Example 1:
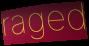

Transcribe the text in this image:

raged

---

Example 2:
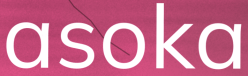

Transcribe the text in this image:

asoka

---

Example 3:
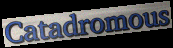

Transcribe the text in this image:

Catadromous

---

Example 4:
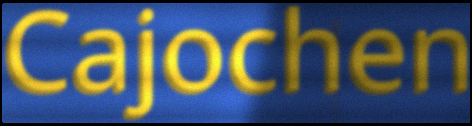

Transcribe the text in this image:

Cajochen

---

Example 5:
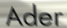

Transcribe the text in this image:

Ader